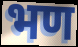
भण